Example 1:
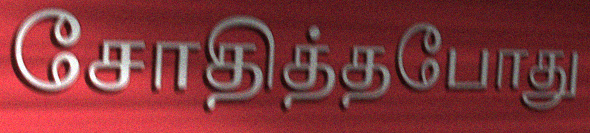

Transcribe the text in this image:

சோதித்தபோது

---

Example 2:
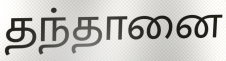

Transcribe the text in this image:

தந்தானை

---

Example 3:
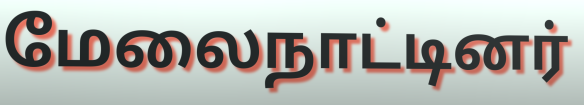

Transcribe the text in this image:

மேலைநாட்டினர்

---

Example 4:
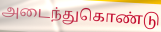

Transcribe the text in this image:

அடைந்துகொண்டு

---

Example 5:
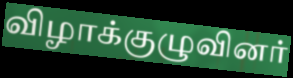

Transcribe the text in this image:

விழாக்குழுவினர்